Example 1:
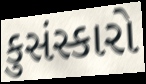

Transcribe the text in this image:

કુસંસ્કારો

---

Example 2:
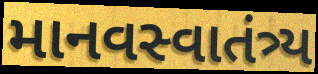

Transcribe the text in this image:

માનવસ્વાતંત્ર્ય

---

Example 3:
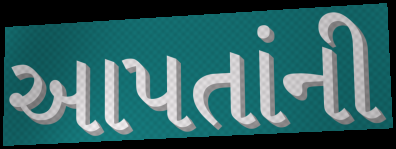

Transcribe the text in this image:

આપતાંની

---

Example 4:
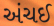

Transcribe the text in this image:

અંચઈ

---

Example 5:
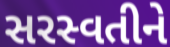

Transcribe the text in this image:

સરસ્વતીને